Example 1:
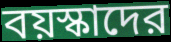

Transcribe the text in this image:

বয়স্কাদের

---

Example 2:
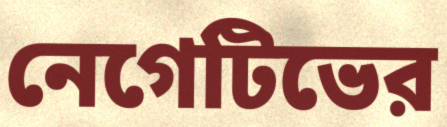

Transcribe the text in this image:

নেগেটিভের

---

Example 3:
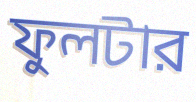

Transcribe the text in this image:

ফুলটার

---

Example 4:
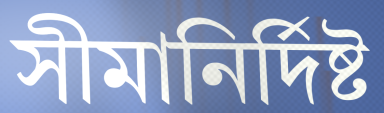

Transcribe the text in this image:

সীমানির্দিষ্ট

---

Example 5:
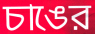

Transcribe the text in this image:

চাঙের